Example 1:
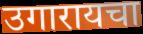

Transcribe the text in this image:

उगारायचा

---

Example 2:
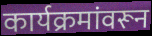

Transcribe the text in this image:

कार्यक्रमांवरून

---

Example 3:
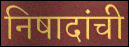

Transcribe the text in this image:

निषादांची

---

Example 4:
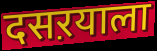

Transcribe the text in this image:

दसऱयाला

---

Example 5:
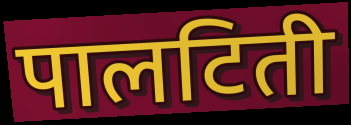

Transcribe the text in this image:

पालटिती